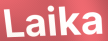
Laika